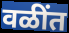
वळींत